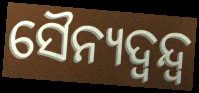
ସୈନ୍ୟଦ୍ୱନ୍ଦ୍ୱ